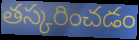
తస్కరించడం